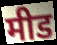
मीड